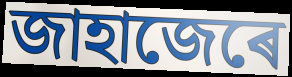
জাহাজেৰে